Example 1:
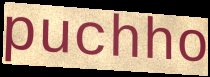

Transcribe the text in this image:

puchho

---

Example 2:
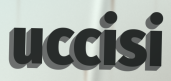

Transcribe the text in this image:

uccisi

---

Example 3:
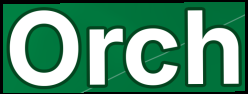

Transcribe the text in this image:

Orch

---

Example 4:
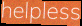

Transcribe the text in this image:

helpless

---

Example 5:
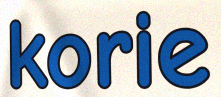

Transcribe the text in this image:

korie